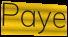
Paye